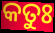
କତୁଃ